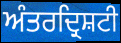
ਅੰਤਰਦ੍ਰਿਸ਼ਟੀ